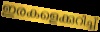
ഇരകളെക്കുറിച്ച്